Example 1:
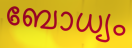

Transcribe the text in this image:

ബോധ്യം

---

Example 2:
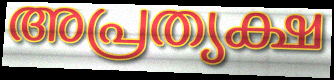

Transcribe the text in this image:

അപ്രത്യക്ഷ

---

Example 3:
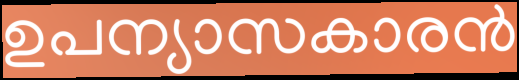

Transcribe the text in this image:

ഉപന്യാസകാരൻ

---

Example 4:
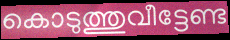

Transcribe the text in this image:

കൊടുത്തുവീട്ടേണ്ട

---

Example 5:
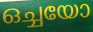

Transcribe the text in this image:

ഒച്ചയോ